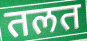
तलत